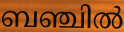
ബഞ്ചിൽ